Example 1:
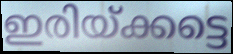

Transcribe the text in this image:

ഇരിയ്ക്കട്ടെ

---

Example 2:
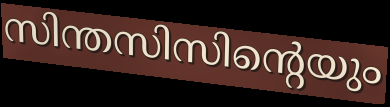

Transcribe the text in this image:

സിന്തസിസിന്റെയും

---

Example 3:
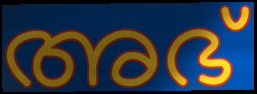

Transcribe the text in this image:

അഭ്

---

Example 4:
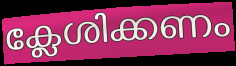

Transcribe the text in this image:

ക്ലേശിക്കണം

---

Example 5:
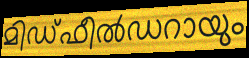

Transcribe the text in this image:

മിഡ്ഫീൽഡറായും